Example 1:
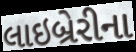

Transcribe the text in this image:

લાઇબ્રેરીના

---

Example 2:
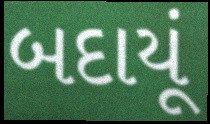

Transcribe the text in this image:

બદાયૂં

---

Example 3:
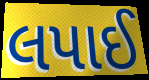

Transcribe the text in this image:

લપાઈ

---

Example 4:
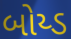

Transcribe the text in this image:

બોય્ડ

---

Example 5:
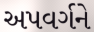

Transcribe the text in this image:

અપવર્ગને